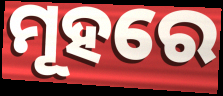
ମୂହରେ